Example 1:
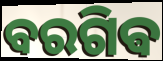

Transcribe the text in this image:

ବରଗିଵ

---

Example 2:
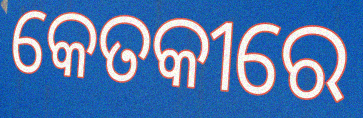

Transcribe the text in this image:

କେତକୀରେ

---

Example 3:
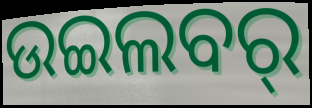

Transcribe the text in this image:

ଉଇଲବର୍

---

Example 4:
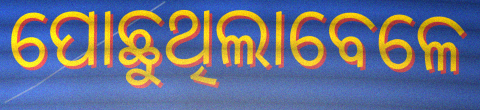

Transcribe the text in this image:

ପୋଛୁଥିଲାବେଳେ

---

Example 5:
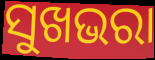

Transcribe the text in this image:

ସୁଖଭରା